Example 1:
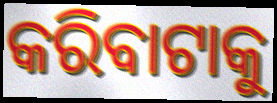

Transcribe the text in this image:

କରିବାଟାକୁ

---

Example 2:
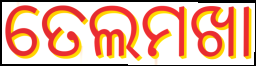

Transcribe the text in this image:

ତେଲମଖା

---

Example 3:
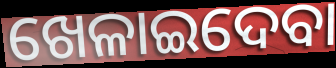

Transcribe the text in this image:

ଖେଳାଇଦେବା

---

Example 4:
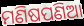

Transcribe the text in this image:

ମଣିଷପଣିଆ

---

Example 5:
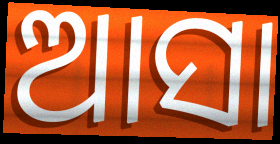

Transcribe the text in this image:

ଆସା